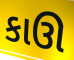
કાઊ